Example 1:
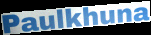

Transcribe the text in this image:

Paulkhuna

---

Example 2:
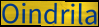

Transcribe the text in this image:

Oindrila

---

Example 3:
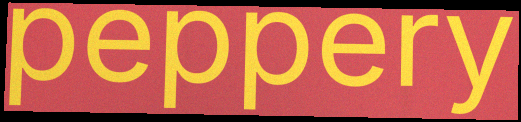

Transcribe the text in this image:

peppery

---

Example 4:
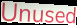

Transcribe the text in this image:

Unused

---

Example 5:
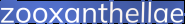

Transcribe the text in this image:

zooxanthellae